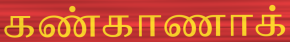
கண்காணாக்